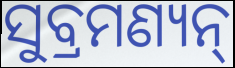
ସୁବ୍ରମଣ୍ୟନ୍